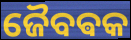
ଜୈବଵକ